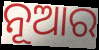
ନୂଆର